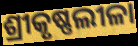
ଶ୍ରୀକୃଷ୍ଣଲୀଳା